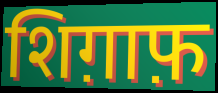
शिग़ाफ़